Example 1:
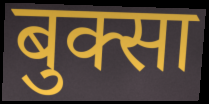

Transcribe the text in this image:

बुक्सा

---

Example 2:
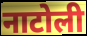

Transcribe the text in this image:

नाटोली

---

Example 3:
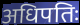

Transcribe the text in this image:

अधिपतिः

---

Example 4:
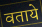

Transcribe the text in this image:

वताये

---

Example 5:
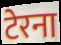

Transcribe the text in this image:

टेरना